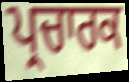
ਪ੍ਰਚਾਰਕ